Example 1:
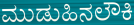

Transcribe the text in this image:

ಮುಡುಹಿನಲೌಕಿ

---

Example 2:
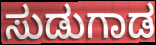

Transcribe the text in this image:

ಸುಡುಗಾಡ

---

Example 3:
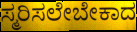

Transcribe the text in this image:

ಸ್ಮರಿಸಲೇಬೇಕಾದ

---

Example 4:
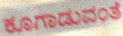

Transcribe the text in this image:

ಕೂಗಾಡುವಂತೆ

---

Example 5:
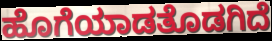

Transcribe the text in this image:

ಹೊಗೆಯಾಡತೊಡಗಿದೆ